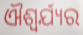
ଐଶ୍ୱର୍ଯ୍ୟର